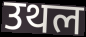
उथल